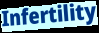
Infertility